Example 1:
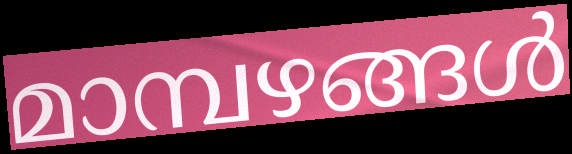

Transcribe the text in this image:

മാമ്പഴങ്ങൾ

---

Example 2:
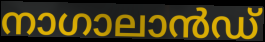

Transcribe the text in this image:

നാഗാലാൻഡ്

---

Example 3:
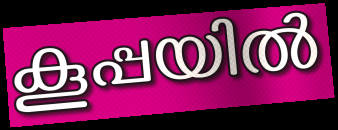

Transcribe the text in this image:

കൂപ്പയിൽ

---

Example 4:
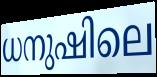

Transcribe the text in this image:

ധനുഷിലെ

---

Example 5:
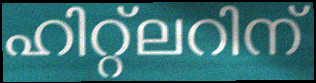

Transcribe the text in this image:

ഹിറ്റ്ലറിന്